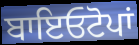
ਬਾਇਓਟੋਪਾਂ